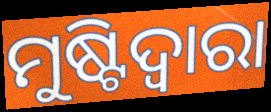
ମୁଷ୍ଟିଦ୍ୱାରା